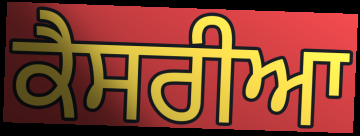
ਕੈਸਰੀਆ